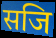
सजि